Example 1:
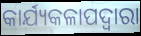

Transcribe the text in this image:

କାର୍ଯ୍ୟକଳାପଦ୍ୱାରା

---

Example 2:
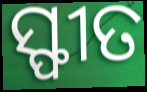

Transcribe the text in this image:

ସ୍ଫୀତ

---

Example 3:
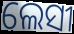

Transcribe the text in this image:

ଲେସୀ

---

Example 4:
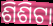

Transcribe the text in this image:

ଶିଶିଟା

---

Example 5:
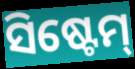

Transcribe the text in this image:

ସିଷ୍ଟେମ୍